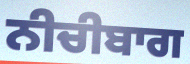
ਨੀਚੀਬਾਗ